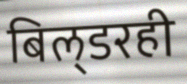
बिल्डरही